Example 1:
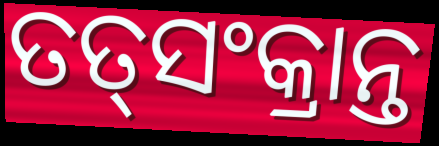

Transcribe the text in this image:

ତତ୍‌ସଂକ୍ରାନ୍ତ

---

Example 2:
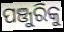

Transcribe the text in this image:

ପଞ୍ଜୁରିକୁ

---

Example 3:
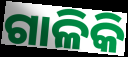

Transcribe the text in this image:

ଗାଳିକି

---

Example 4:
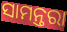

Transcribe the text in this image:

ସାମନ୍ତରା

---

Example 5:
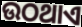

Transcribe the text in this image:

ଉଠଥାଏ